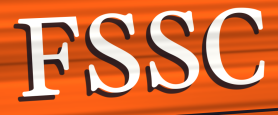
FSSC